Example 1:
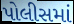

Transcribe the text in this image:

પોલીસમાં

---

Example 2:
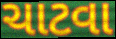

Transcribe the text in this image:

ચાટવા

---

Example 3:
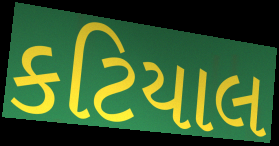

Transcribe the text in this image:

કટિયાલ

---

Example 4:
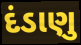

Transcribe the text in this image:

દંડાણુ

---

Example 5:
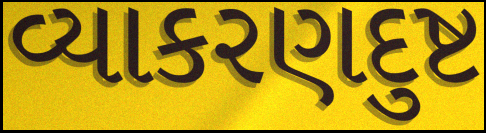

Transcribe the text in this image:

વ્યાકરણદુષ્ટ